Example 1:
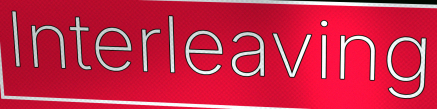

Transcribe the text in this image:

Interleaving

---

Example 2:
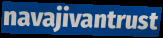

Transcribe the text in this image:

navajivantrust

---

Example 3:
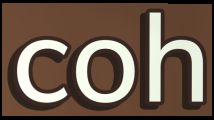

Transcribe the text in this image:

coh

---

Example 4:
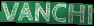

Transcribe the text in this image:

VANCHI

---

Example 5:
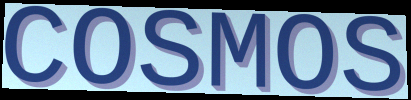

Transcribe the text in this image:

COSMOS